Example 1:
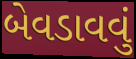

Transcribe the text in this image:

બેવડાવવું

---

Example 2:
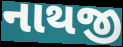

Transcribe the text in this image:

નાથજી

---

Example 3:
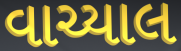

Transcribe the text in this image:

વાચ્યાલ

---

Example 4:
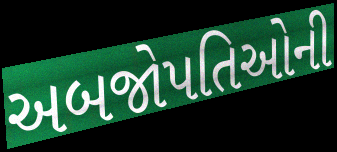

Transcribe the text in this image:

અબજોપતિઓની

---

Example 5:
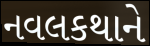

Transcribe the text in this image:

નવલકથાને